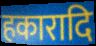
हकारादि